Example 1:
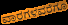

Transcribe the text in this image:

ವಾರಗಳವರೆಗೂ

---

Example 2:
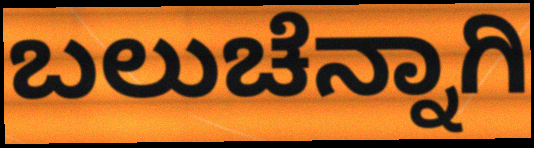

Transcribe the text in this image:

ಬಲುಚೆನ್ನಾಗಿ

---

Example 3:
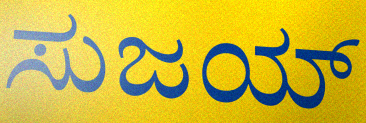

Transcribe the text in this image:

ಸುಜಯ್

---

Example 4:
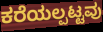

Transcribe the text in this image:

ಕರೆಯಲ್ಪಟ್ಟವು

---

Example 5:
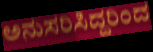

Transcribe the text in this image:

ಅನುಸರಿಸಿದ್ದರಿಂದ